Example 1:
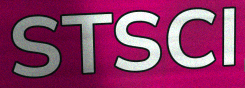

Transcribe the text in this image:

STSCI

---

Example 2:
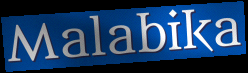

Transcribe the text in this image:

Malabika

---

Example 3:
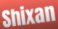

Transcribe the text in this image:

Shixan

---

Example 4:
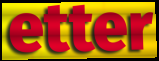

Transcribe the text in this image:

etter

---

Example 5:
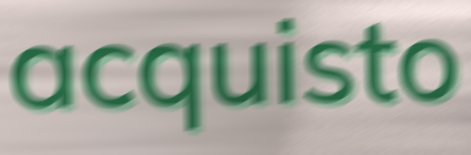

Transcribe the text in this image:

acquisto